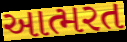
આત્મરત